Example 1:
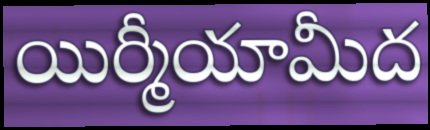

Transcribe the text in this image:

యిర్మీయామీద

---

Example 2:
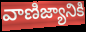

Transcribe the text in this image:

వాణిజ్యానికి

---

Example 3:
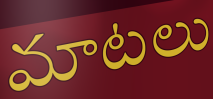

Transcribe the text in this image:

మాటలు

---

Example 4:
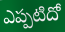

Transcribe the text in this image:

ఎప్పటిదో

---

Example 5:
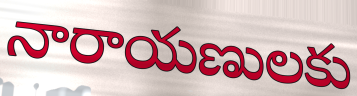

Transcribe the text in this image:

నారాయణులకు